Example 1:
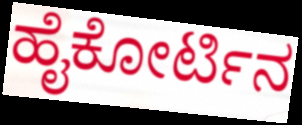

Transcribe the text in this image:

ಹೈಕೋರ್ಟಿನ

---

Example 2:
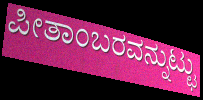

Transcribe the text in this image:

ಪೀತಾಂಬರವನ್ನುಟ್ಟು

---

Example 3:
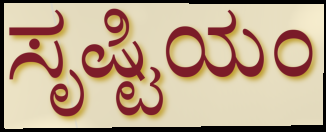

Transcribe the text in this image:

ಸೃಷ್ಟಿಯಂ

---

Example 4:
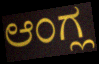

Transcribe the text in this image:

ಆಂಗ್ಲ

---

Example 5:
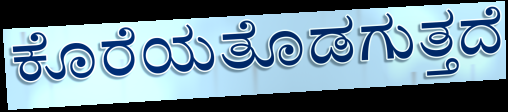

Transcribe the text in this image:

ಕೊರೆಯತೊಡಗುತ್ತದೆ